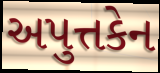
અપુત્તકેન